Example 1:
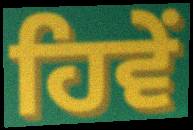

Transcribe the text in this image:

ਹਿਵੇਂ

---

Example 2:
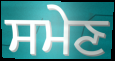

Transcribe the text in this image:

ਸਮੇਣ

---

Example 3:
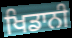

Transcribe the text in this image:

ਖਿਡਾਨੀ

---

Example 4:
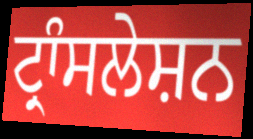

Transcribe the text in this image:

ਟ੍ਰਾੰਸਲੇਸ਼ਨ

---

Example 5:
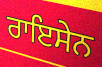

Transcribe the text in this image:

ਰਾਇਸੇਨ